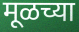
मूळच्या